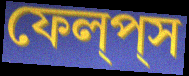
ফেল্‌প্‌স